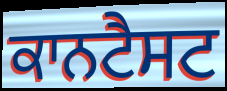
ਕਾਨਟੈਸਟ